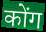
कोंग